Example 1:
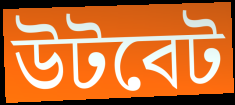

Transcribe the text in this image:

উটবেট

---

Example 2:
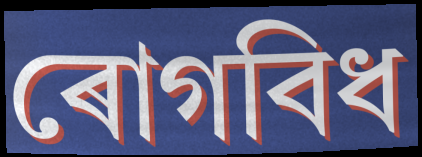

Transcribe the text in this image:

ৰোগবিধ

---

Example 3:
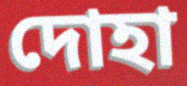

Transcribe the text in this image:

দোহা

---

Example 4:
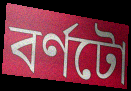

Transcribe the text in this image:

বৰ্ণটো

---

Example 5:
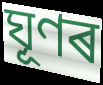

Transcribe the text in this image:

ঘূণৰ